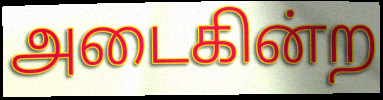
அடைகின்ற